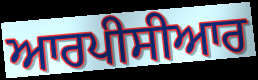
ਆਰਪੀਸੀਆਰ